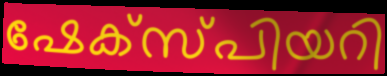
ഷേക്സ്പിയറി